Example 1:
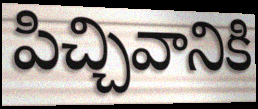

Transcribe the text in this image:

పిచ్చివానికి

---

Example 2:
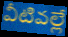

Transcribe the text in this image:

వీటివల్లే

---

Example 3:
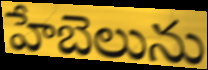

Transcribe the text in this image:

హేబెలును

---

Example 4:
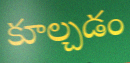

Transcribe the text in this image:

కూల్చడం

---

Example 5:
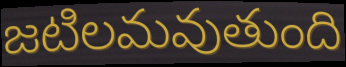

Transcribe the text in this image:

జటిలమవుతుంది